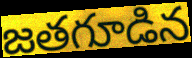
జతగూడిన